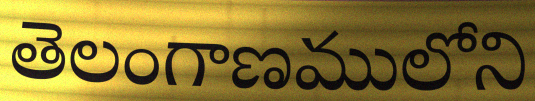
తెలంగాణములోని